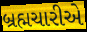
બ્રહ્મચારીએ